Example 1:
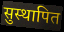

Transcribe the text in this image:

सुस्थापित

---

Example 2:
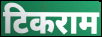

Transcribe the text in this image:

टिकराम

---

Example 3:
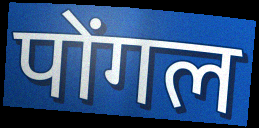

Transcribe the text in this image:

पोंगल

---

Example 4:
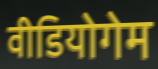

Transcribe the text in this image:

वीडियोगेम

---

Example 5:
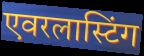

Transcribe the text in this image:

एवरलास्टिंग